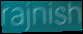
rajnish